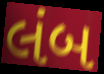
લંબ